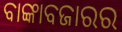
ବାଙ୍କାବଜାରର